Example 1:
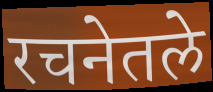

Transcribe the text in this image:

रचनेतले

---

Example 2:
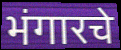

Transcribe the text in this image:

भंगारचे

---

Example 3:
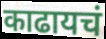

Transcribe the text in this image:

काढायचं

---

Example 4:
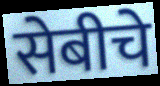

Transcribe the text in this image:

सेबीचे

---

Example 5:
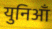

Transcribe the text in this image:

युनिआँ